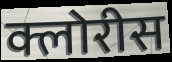
क्लोरीस